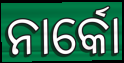
ନାର୍କୋ